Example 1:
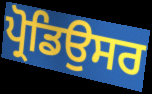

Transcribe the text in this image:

ਪ੍ਰੋਡਿਉਸਰ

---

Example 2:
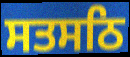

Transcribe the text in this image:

ਸਤਸਠਿ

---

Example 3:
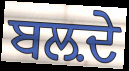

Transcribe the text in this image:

ਬਲ਼ਦੇ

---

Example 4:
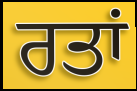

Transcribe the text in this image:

ਰਤਾਂ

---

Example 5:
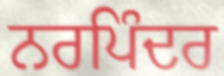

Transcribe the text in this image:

ਨਰਪਿੰਦਰ